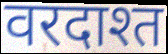
वरदाश्त